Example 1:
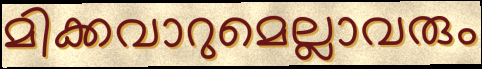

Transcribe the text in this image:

മിക്കവാറുമെല്ലാവരും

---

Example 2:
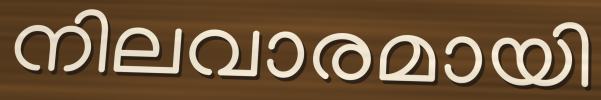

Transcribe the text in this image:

നിലവാരമായി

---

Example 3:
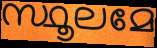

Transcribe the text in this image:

സ്ഥൂലമേ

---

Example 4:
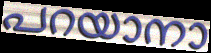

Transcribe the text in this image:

പറയാനാ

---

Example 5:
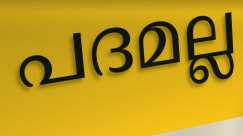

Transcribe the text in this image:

പദമല്ല